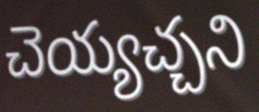
చెయ్యచ్చని